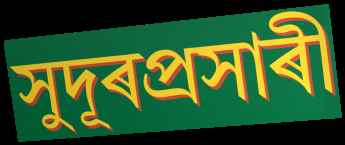
সুদূৰপ্ৰসাৰী